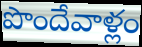
పొందేవాళ్లం